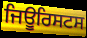
ਜਿਊਰਿਸਟਸ